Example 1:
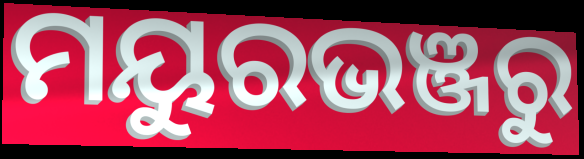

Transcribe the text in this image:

ମୟୁରଭଞ୍ଜରୁ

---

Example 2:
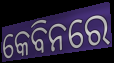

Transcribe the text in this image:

କେବିନରେ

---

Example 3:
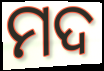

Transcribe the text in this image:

ମଦ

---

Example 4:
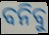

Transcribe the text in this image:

ବନିବୁ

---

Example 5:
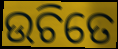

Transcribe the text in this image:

ଉଚିତେ